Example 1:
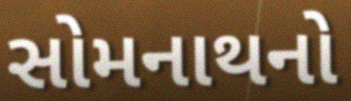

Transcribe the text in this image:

સોમનાથનો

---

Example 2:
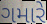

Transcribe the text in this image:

ગમારે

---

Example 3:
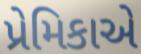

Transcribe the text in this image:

પ્રેમિકાએ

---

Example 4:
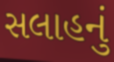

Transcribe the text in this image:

સલાહનું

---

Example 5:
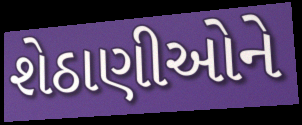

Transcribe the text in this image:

શેઠાણીઓને